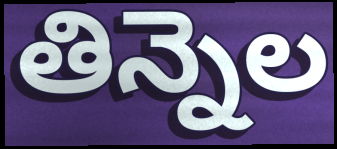
తిన్నెల